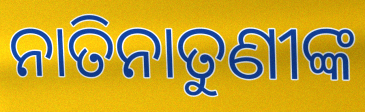
ନାତିନାତୁଣୀଙ୍କ